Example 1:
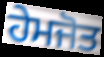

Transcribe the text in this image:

ਹੇਮਜੋਤ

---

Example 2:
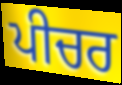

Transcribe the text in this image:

ਪੀਚਰ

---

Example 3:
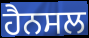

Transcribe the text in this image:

ਹੈਨਸਲ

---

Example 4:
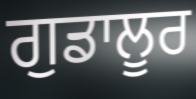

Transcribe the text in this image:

ਗੁਡਾਲੂਰ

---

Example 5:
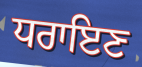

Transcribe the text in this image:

ਧਰਾਇਣ